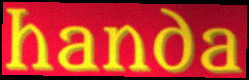
handa